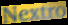
Nextro